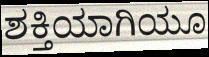
ಶಕ್ತಿಯಾಗಿಯೂ